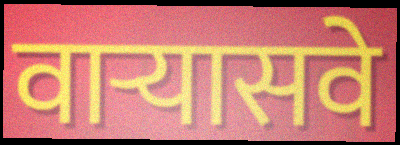
वाऱ्यासवे